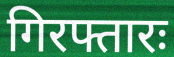
गिरफ्तारः